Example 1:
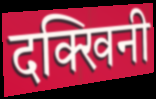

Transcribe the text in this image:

दक्खिनी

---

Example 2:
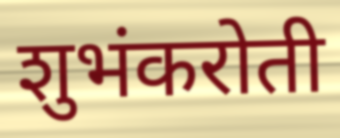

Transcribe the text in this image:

शुभंकरोती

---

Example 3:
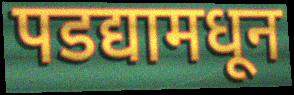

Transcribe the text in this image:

पडद्यामधून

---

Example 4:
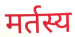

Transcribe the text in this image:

मर्तस्य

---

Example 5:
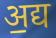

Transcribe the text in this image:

अ॒द्य